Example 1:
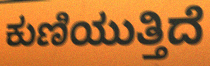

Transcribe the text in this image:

ಕುಣಿಯುತ್ತಿದೆ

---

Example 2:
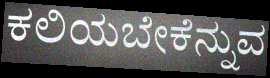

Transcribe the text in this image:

ಕಲಿಯಬೇಕೆನ್ನುವ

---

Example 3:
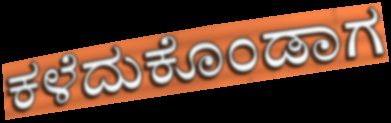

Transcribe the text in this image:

ಕಳೆದುಕೊಂಡಾಗ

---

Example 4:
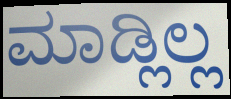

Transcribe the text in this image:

ಮಾಡ್ಲಿಲ್ಲ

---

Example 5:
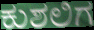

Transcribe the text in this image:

ಕುಶಲಿಗ